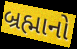
બ્રહ્માનો